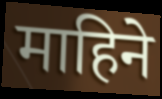
माहिने